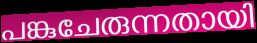
പങ്കുചേരുന്നതായി